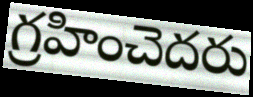
గ్రహించెదరు